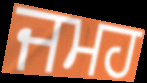
ਜਮਹ